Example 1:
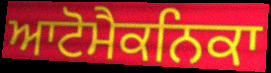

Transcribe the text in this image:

ਆਟੋਮੈਕਨਿਕਾ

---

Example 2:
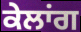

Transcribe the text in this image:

ਕੇਲਾਂਗ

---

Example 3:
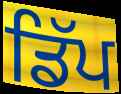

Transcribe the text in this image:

ਡਿੱਪ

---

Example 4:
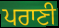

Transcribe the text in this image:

ਪਰਾਣੀ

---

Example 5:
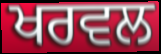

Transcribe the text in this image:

ਖਰਵਲ